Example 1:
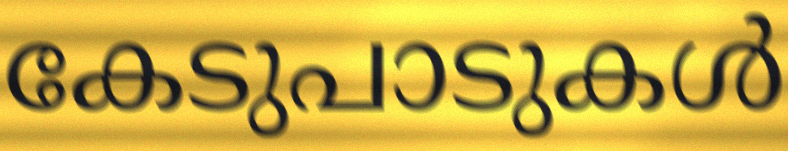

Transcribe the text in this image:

കേടുപാടുകൾ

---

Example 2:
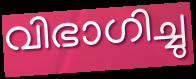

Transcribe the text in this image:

വിഭാഗിച്ചു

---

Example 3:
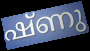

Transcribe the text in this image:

ഷ്ണു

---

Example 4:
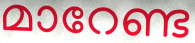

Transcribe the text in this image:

മാറേണ്ട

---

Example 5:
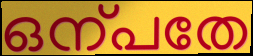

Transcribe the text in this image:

ഒന്പതേ